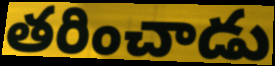
తరించాడు